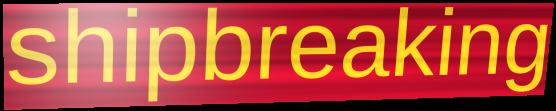
shipbreaking